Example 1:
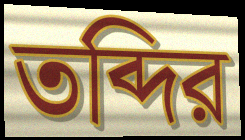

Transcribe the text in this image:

তব্দির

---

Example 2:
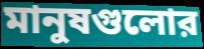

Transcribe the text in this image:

মানুষগুলোর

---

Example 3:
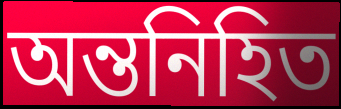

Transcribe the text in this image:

অন্তনিহিত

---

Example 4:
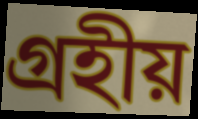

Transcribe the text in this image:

গ্রহীয়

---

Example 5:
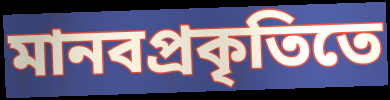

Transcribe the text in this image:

মানবপ্রকৃতিতে